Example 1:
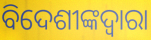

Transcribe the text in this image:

ବିଦେଶୀଙ୍କଦ୍ୱାରା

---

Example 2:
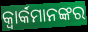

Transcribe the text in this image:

କ୍ୱାର୍କମାନଙ୍କର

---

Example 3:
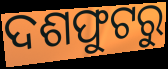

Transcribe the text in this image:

ଦଶଫୁଟରୁ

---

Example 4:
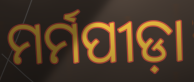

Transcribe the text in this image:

ମର୍ମପୀଡ଼ା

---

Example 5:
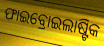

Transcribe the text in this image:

ଫାଇବ୍ରୋଇଲାଷ୍ଟିକ